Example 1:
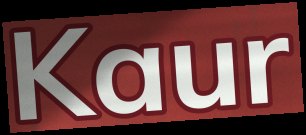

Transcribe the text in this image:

Kaur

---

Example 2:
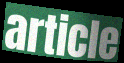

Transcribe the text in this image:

article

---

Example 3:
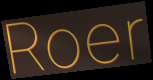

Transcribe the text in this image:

Roer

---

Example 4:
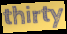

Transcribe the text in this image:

thirty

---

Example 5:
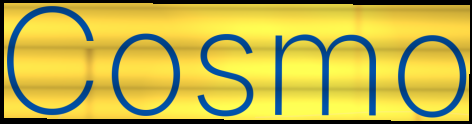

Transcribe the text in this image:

Cosmo